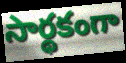
సార్థకంగా